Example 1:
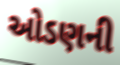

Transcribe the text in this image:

ઓડણની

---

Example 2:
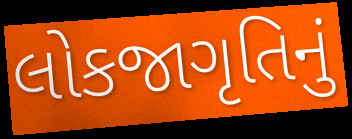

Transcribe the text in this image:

લોકજાગૃતિનું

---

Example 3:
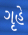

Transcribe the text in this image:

ગૃહે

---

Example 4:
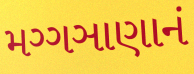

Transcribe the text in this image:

મગ્ગઞાણાનં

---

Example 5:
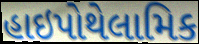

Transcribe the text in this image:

હાઇપોથેલામિક